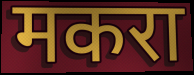
मकरा